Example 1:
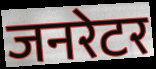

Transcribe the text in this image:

जनरेटर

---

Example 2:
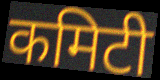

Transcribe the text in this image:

कमिटी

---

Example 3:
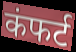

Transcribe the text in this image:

कंफर्ट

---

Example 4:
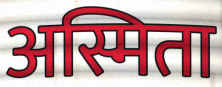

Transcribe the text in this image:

अस्मिता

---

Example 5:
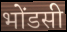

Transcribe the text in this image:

भोंडसी